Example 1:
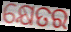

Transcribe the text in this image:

କ୍ଷେତର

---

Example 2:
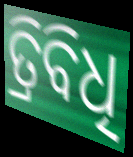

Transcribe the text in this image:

ତ୍ରିବିଧି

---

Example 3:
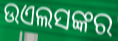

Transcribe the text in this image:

ଉଏଲସଙ୍କର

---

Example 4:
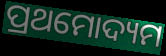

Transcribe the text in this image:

ପ୍ରଥମୋଦ୍ୟମ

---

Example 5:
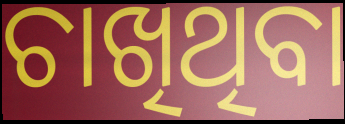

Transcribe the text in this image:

ଚାଖିଥିବା